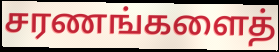
சரணங்களைத்